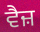
ਵੈਜ਼